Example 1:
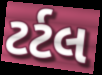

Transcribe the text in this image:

ટર્ટલ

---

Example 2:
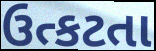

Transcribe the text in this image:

ઉત્કટતા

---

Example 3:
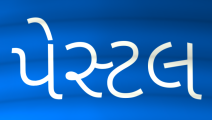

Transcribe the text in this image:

પેસ્ટલ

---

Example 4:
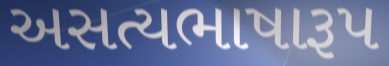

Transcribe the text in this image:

અસત્યભાષારૂપ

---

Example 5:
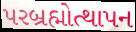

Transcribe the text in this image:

પરબ્રહ્મોત્થાપન